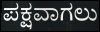
ಪಕ್ಷವಾಗಲು